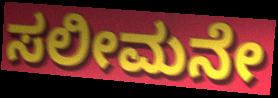
ಸಲೀಮನೇ